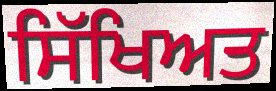
ਸਿੱਖਿਅਤ